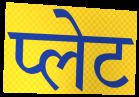
प्‍लेट